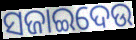
ସଜାଇଦେଉ